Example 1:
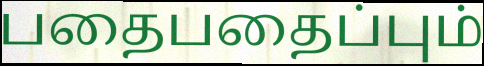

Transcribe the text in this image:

பதைபதைப்பும்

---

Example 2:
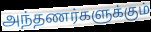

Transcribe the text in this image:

அந்தணர்களுக்கும்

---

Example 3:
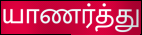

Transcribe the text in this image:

யாணர்த்து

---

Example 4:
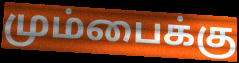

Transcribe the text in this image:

மும்பைக்கு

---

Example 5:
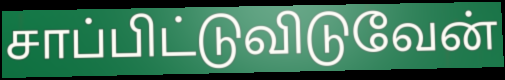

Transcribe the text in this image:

சாப்பிட்டுவிடுவேன்